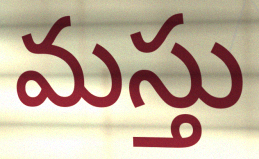
మస్తు